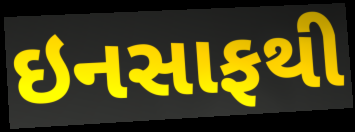
ઇનસાફથી